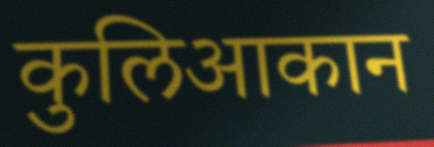
कुलिआकान